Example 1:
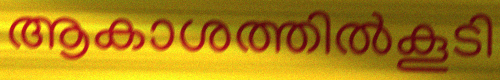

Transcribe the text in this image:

ആകാശത്തിൽകൂടി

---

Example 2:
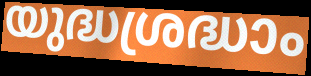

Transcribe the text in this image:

യുദ്ധശ്രദ്ധാം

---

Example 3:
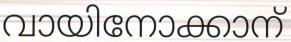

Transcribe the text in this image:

വായിനോക്കാന്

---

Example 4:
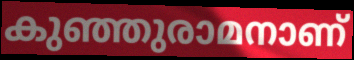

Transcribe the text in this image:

കുഞ്ഞുരാമനാണ്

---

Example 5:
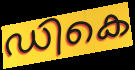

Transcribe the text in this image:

ഡികെ